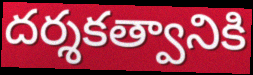
దర్శకత్వానికి